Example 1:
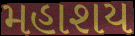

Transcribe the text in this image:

મહાશય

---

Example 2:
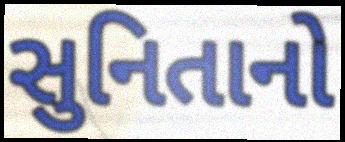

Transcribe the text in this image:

સુનિતાનો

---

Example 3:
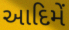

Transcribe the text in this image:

આદિમેં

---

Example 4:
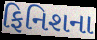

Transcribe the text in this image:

ફિનિશના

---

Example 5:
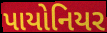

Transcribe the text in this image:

પાયોનિયર